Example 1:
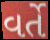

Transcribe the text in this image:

વર્તે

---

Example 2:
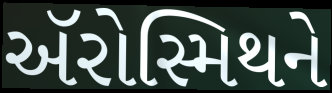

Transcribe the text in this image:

ઍરોસ્મિથને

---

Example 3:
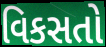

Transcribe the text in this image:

વિકસતો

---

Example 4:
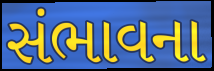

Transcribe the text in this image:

સંભાવના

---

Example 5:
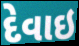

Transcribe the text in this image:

દેવાઇ